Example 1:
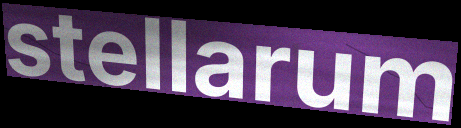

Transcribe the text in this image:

stellarum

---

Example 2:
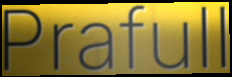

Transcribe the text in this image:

Prafull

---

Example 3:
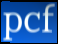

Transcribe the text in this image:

pcf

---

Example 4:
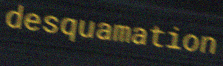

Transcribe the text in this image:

desquamation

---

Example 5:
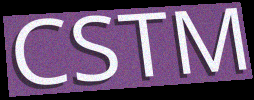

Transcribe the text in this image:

CSTM